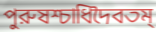
পুরুষশ্চাধিদৈবতম্